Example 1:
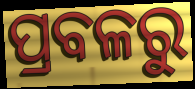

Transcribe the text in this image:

ପ୍ରବଳରୁ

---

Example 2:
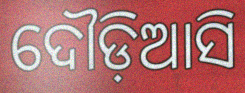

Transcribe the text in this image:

ଦୌଡ଼ିଆସି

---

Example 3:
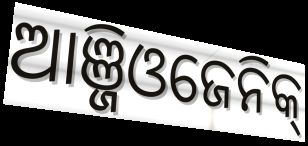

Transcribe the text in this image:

ଆଞ୍ଜିଓଜେନିକ୍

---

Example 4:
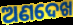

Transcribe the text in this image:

ଅଣଦେଖ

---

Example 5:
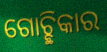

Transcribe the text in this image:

ଗୋଚ୍ଛିକାର